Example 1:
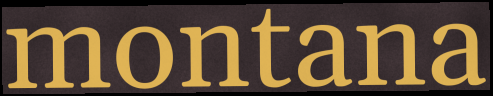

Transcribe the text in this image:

montana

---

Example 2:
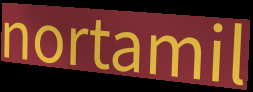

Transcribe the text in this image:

nortamil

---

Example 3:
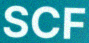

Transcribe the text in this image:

SCF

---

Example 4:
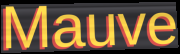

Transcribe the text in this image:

Mauve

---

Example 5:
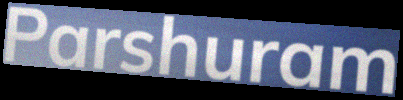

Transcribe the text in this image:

Parshuram